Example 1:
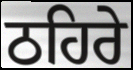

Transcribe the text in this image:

ਠਹਿਰੇ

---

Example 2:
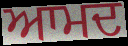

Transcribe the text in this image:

ਆਮਦ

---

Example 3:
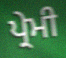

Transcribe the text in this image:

ਪ੍ਰੇਮੀ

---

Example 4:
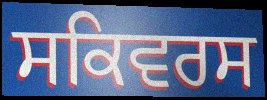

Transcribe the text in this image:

ਸਕਿਵਰਸ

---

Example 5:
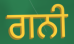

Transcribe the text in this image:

ਗਨੀ